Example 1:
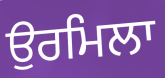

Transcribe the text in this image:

ਉਰਮਿਲਾ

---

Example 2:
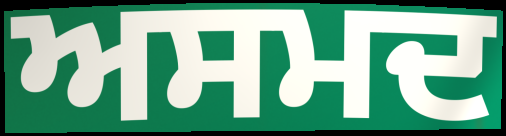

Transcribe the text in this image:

ਅਸਮਦ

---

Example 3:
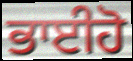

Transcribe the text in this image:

ਭਾਈਹੋ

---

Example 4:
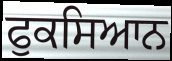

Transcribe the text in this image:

ਫੁਕਸਿਆਨ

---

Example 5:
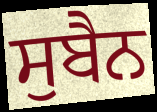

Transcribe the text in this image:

ਸੁਬੈਨ